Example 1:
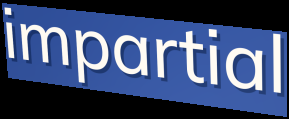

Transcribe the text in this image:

impartial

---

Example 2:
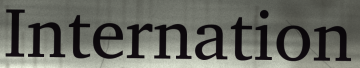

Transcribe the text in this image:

Internation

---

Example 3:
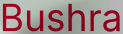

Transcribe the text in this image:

Bushra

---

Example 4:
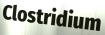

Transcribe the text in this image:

Clostridium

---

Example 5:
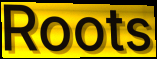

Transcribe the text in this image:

Roots